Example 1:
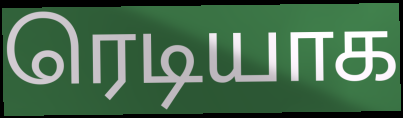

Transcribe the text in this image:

ரெடியாக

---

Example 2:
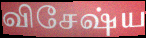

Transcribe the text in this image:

விசேஷ்ய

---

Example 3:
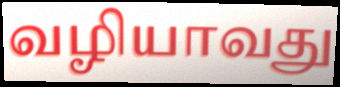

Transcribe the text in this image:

வழியாவது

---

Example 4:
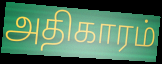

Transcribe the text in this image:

அதிகாரம்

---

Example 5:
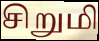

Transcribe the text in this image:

சிறுமி